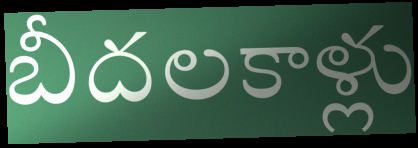
బీదలకాళ్లు